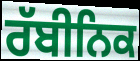
ਰੱਬੀਨਿਕ